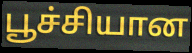
பூச்சியான